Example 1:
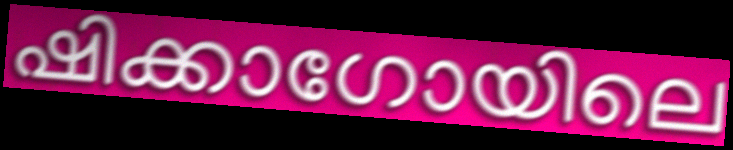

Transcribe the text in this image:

ഷിക്കാഗോയിലെ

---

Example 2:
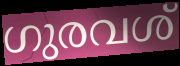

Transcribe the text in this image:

ഗുരവശ്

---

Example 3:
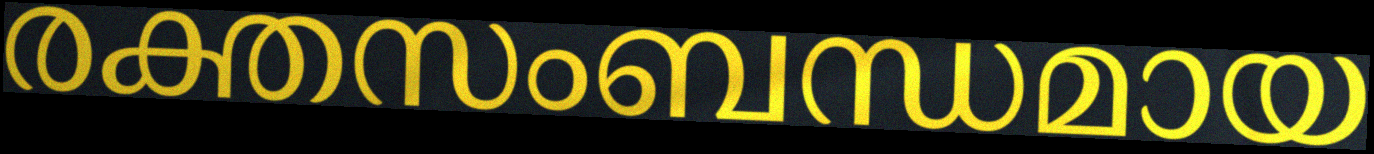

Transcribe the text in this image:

രക്തസംബന്ധമായ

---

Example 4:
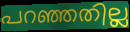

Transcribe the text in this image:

പറഞ്ഞതില്ല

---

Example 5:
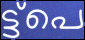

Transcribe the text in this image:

ട്ട്പെ